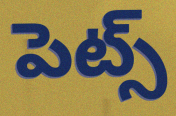
పెట్స్